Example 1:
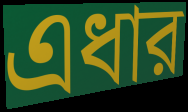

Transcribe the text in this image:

এধার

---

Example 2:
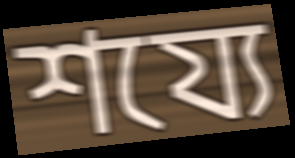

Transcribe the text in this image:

শয্যে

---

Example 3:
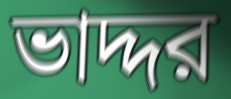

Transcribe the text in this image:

ভাদ্দর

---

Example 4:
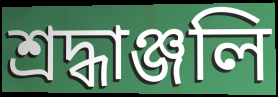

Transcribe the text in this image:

শ্রদ্ধাঞ্জলি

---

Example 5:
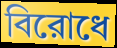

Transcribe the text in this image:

বিরোধে